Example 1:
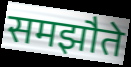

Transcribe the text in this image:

समझौते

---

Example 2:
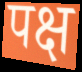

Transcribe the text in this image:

पक्ष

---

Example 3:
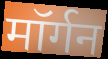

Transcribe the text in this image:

मॉर्गन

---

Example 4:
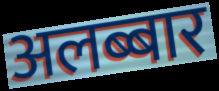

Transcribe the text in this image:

अलब्बार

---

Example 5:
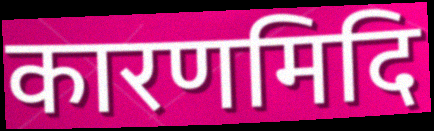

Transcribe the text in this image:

कारणमिदि